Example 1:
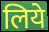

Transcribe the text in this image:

लिये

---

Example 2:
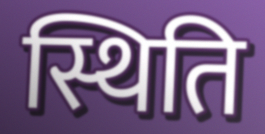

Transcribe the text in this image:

स्थिति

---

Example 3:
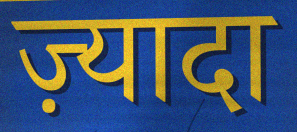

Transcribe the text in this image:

ज़्यादा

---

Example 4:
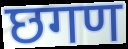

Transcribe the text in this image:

छगण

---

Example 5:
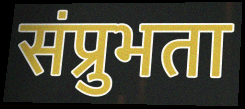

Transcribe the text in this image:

संप्रुभता